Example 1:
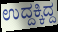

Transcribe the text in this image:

ಉದ್ದಕ್ಕಿದ್ದ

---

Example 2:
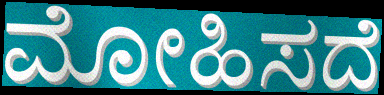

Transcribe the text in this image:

ಮೋಹಿಸದೆ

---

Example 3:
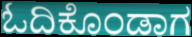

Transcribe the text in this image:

ಓದಿಕೊಂಡಾಗ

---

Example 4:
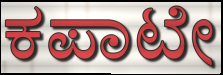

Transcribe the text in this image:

ಕಪಾಟೇ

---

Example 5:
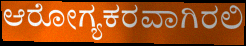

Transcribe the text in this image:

ಆರೋಗ್ಯಕರವಾಗಿರಲಿ